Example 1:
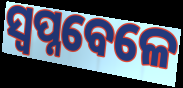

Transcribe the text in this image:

ସ୍ଵପ୍ନବେଳେ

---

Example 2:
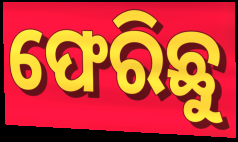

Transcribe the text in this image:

ଫେରିଛୁ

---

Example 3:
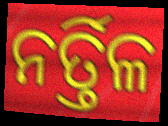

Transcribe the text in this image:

ନର୍ତ୍ତିଳ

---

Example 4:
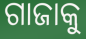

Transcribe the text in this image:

ଗାଜାକୁ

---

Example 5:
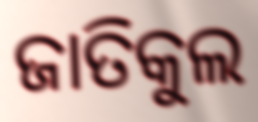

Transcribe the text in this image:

ଜାତିକୁଲ